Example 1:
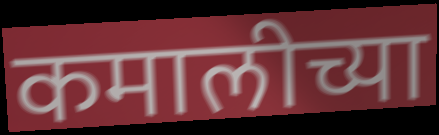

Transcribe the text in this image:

कमालीच्या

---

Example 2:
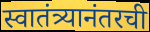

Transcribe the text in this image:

स्वातंत्र्यानंतरची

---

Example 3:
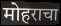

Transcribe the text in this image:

मोहराचा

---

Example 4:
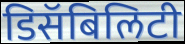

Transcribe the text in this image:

डिसॅबिलिटी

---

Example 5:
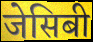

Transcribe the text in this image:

जेसिबी